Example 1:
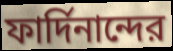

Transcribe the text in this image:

ফার্দিনান্দের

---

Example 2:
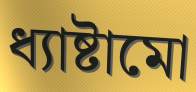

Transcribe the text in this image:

ধ্যাষ্টামো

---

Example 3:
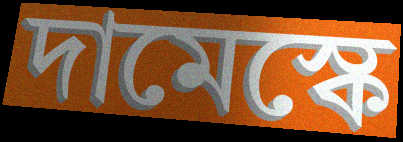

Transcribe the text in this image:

দামেস্কে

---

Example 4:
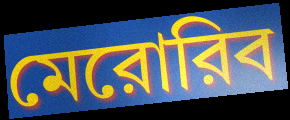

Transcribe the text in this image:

মেরোরিব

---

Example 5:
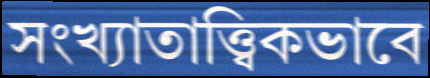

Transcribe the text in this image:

সংখ্যাতাত্ত্বিকভাবে